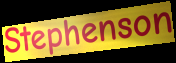
Stephenson